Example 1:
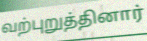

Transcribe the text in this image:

வற்புறுத்தினார்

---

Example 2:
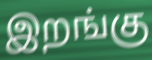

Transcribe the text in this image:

இறங்கு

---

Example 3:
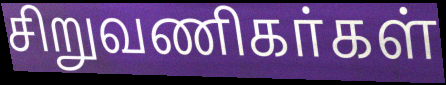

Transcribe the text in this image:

சிறுவணிகர்கள்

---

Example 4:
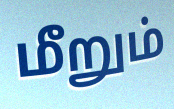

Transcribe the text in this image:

மீறும்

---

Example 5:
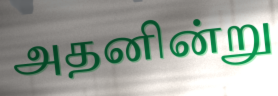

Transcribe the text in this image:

அதனின்று